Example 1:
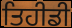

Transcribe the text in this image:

ਤਿਹੀਡੀ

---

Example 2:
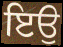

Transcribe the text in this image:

ਇਉ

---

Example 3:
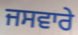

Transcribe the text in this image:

ਜਸਵਾਰੇ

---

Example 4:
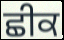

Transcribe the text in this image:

ਛੀਕ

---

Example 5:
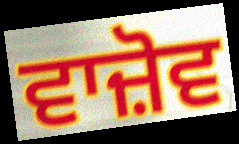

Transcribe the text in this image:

ਵਾਜ਼ੋਵ